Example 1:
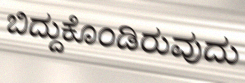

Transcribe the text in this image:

ಬಿದ್ದುಕೊಂಡಿರುವುದು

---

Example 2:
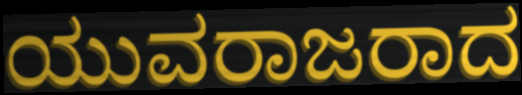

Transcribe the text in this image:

ಯುವರಾಜರಾದ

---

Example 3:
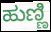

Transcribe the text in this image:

ಹುಣ್ಣಿ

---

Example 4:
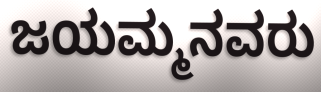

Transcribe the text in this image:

ಜಯಮ್ಮನವರು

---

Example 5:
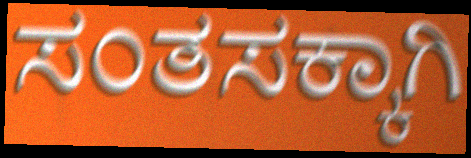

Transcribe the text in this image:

ಸಂತಸಕ್ಕಾಗಿ